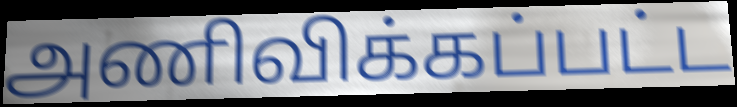
அணிவிக்கப்பட்ட